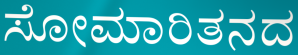
ಸೋಮಾರಿತನದ